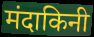
मंदाकिनी